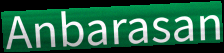
Anbarasan